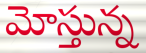
మోస్తున్న